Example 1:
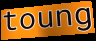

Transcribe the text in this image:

toung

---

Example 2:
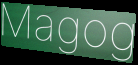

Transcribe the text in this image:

Magog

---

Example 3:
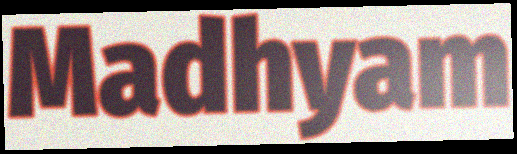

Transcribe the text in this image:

Madhyam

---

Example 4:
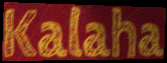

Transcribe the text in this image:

Kalaha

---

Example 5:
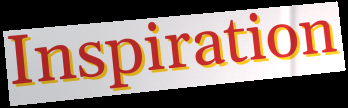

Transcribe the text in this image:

Inspiration